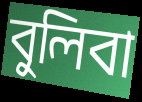
বুলিবা